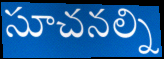
సూచనల్ని